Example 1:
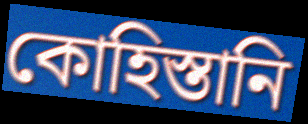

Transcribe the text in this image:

কোহিস্তানি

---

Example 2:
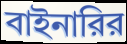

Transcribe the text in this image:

বাইনারির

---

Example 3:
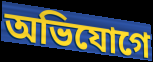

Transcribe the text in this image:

অভিযোগে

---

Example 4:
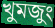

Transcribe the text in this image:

খুমজুং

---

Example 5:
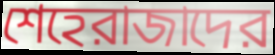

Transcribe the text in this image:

শেহেরাজাদের